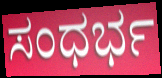
ಸಂಧರ್ಭ